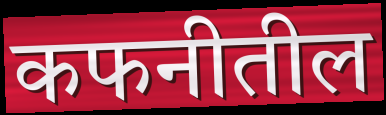
कफनीतील